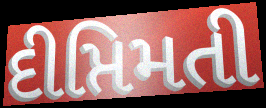
દીપ્તિમતી